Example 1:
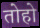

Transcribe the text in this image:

तोहो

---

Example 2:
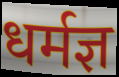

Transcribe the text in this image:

धर्मज्ञ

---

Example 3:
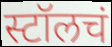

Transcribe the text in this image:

स्टॉलचं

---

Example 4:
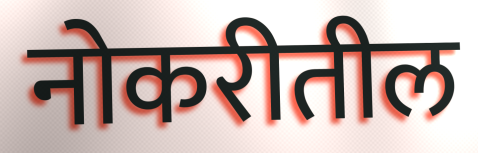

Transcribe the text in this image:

नोकरीतील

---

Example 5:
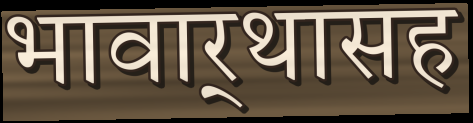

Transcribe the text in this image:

भावार्थासह